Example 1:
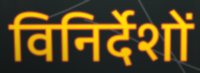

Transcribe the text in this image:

विनिर्देशों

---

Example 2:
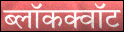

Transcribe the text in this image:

ब्लॉकक्वॉट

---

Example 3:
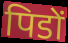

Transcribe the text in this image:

पिडों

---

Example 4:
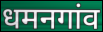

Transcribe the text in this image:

धमनगांव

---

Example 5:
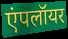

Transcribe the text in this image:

एंपलॉयर